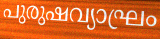
പുരുഷവ്യാഘ്രം